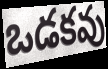
ఒడకవు